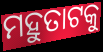
ମହୁତାଟକୁ